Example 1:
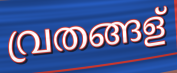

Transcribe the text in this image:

വ്രതങ്ങള്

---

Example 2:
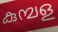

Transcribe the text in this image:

കുമ്പള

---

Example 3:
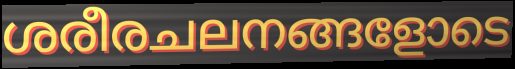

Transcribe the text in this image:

ശരീരചലനങ്ങളോടെ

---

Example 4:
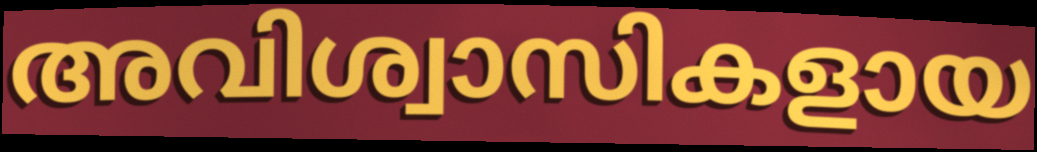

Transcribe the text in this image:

അവിശ്വാസികളായ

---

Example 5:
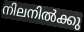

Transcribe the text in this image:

നിലനിൽക്കു